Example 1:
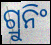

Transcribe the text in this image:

ଗ୍ରୁନିଂ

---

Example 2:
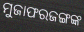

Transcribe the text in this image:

ମୁଜାଫରଜଙ୍ଗଙ୍କ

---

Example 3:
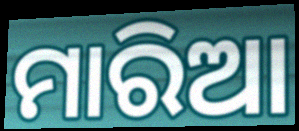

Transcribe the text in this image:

ମାରିଆ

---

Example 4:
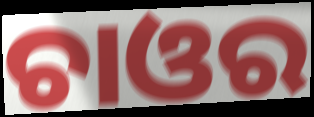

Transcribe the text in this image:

ଚାଓର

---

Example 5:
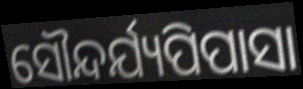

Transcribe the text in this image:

ସୌନ୍ଦର୍ଯ୍ୟପିପାସା